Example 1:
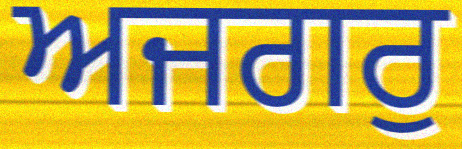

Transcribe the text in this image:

ਅਜਗਰੁ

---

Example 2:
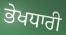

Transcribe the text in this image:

ਭੇਖਧਾਰੀ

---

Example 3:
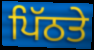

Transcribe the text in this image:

ਪਿੱਠਤੇ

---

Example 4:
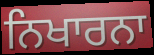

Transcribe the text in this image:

ਨਿਖਾਰਨਾ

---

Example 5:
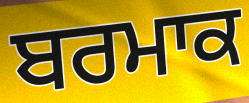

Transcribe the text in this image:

ਬਰਮਾਕ